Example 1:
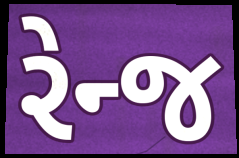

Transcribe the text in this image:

રેન્જ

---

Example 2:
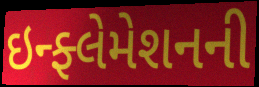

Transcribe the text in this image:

ઇન્ફ્લેમેશનની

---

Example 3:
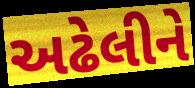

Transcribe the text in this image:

અઢેલીને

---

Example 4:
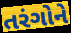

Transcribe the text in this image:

તરંગોને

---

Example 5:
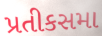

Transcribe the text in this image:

પ્રતીકસમા